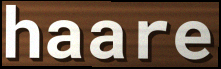
haare